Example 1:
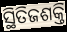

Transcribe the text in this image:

ସ୍ଥିତିଜଶକ୍ତି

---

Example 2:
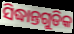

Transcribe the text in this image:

ସିଦ୍ଧାନ୍ତଗୁଡିକ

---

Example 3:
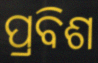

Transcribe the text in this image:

ପ୍ରବିଶ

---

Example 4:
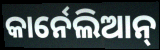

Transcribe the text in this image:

କାର୍ନେଲିଆନ୍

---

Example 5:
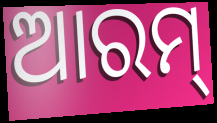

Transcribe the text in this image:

ଆରମ୍